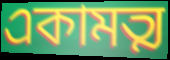
একামত্ম